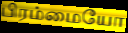
பிரம்மையோ